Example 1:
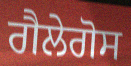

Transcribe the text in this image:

ਗੈਲੇਗੋਸ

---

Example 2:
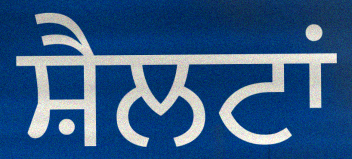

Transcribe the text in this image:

ਸ਼ੈਲਟਾਂ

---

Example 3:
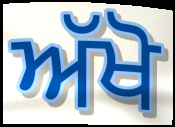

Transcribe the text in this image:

ਅੱਖੋ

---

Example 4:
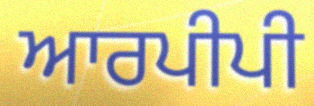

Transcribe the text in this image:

ਆਰਪੀਪੀ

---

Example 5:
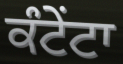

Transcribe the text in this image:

ਕੰਟੇਂਟਾ